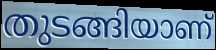
തുടങ്ങിയാണ്